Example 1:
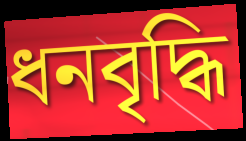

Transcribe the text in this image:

ধনবৃদ্ধি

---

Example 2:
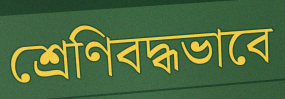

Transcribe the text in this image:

শ্রেণিবদ্ধভাবে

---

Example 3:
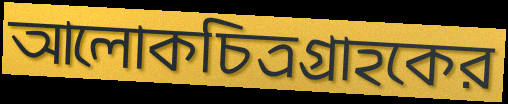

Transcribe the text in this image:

আলোকচিত্রগ্রাহকের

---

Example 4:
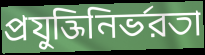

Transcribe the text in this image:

প্রযুক্তিনির্ভরতা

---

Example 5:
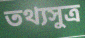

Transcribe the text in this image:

তথ্যসুত্র